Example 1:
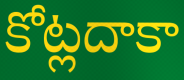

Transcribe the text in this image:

కోట్లదాకా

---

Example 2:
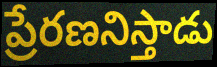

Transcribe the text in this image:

ప్రేరణనిస్తాడు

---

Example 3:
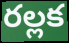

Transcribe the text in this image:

రల్లక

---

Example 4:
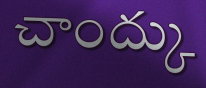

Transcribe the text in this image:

చాంద్కు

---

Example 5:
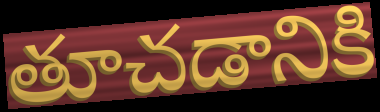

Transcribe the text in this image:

తూచడానికి